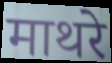
माथरे